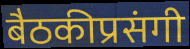
बैठकीप्रसंगी